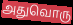
அதுவொரு